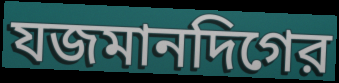
যজমানদিগের